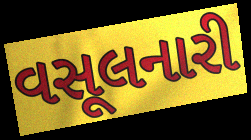
વસૂલનારી